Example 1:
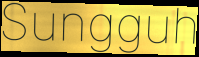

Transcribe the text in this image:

Sungguh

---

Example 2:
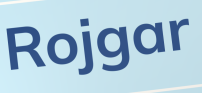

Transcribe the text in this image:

Rojgar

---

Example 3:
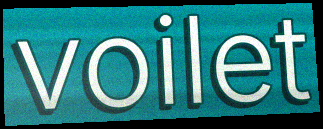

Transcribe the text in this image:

voilet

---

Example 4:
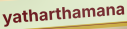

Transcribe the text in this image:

yatharthamana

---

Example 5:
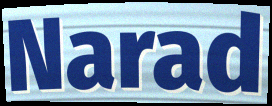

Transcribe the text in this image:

Narad